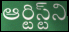
ఆర్టిస్ట్‌ని